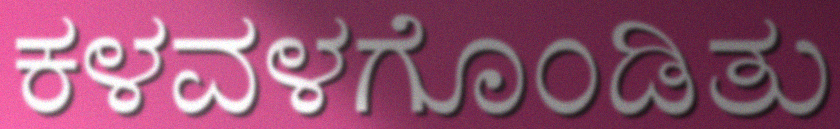
ಕಳವಳಗೊಂಡಿತು